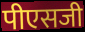
पीएसजी